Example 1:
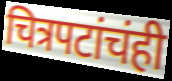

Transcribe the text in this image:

चित्रपटांचंही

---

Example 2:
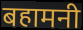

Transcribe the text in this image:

बहामनी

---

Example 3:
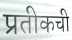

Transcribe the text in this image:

प्रतीकची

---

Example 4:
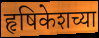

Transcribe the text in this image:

हृषिकेशच्या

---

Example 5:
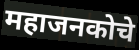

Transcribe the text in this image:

महाजनकोचे